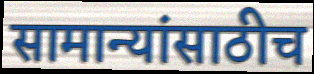
सामान्यांसाठीच